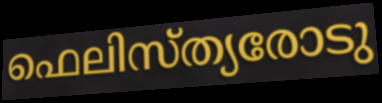
ഫെലിസ്ത്യരോടു